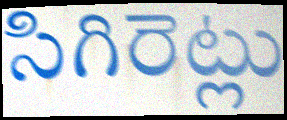
సిగిరెట్లు